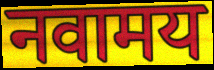
नवामय